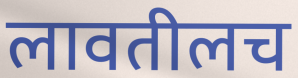
लावतीलच